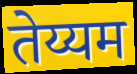
तेय्यम